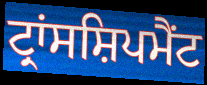
ਟ੍ਰਾਂਸਸ਼ਿਪਮੈਂਟ